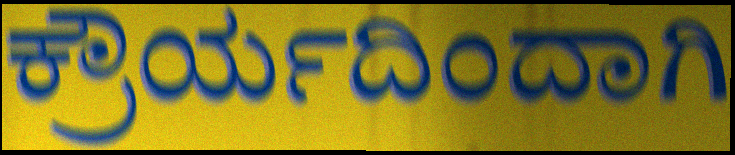
ಕ್ರೌರ್ಯದಿಂದಾಗಿ